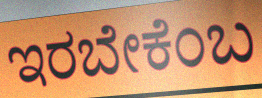
ಇರಬೇಕೆಂಬ